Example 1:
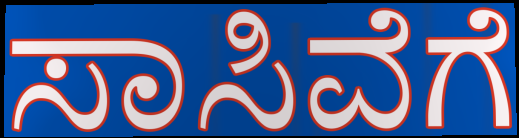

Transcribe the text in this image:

ಸಾಸಿವೆಗೆ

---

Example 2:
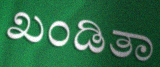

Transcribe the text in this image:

ಖಂಡಿತಾ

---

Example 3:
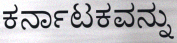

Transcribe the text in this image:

ಕರ್ನಾಟಕವನ್ನು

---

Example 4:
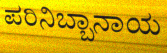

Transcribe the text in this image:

ಪರಿನಿಬ್ಬಾನಾಯ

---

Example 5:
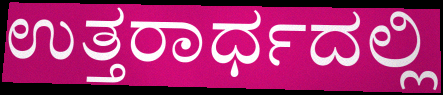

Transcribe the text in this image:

ಉತ್ತರಾರ್ಧದಲ್ಲಿ